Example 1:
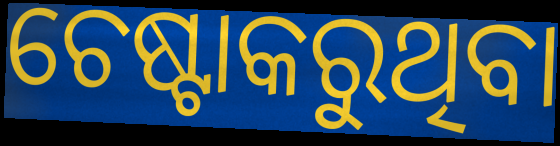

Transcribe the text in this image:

ଚେଷ୍ଟାକରୁଥିବା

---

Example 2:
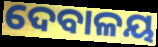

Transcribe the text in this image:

ଦେବାଳୟ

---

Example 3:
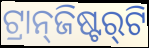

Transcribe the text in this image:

ଟ୍ରାନ୍‌ଜିଷ୍ଟର୍‌ଟି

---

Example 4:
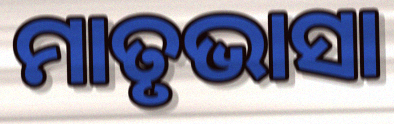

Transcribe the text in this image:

ମାତୃଭାସା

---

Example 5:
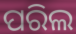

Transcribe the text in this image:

ପରିଲ